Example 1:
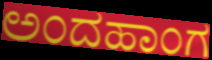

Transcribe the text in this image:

ಅಂದಹಾಂಗ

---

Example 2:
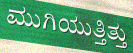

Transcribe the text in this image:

ಮುಗಿಯುತ್ತಿತ್ತು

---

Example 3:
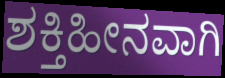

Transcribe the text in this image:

ಶಕ್ತಿಹೀನವಾಗಿ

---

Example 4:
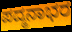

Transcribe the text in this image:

ಪದ್ಮನಾಭರ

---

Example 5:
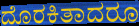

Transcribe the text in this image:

ದೊರಕಿತಾದರೂ